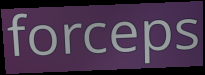
forceps